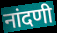
नांदणी